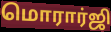
மொரார்ஜி